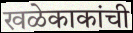
खळेकाकांची